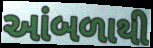
આંબળાથી